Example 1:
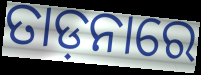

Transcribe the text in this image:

ତାଡ଼ନାରେ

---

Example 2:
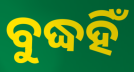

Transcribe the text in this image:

ବୁଦ୍ଧହିଁ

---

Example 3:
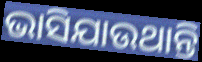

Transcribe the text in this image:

ଭାସିଯାଉଥାନ୍ତି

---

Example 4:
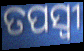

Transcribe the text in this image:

ତପସ୍ବୀ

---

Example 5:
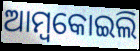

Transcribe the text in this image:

ଆମ୍ବକୋଇଲି